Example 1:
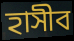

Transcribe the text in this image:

হাসীব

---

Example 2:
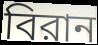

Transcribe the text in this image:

বিরান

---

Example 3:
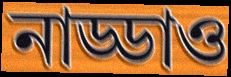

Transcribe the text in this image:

নাড্ডাও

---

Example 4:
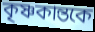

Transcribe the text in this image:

কৃষ্ণকান্তকে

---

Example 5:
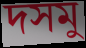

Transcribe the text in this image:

দসমু